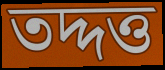
তদ্দত্ত